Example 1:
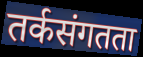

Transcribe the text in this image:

तर्कसंगतता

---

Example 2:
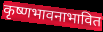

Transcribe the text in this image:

कृष्णभावनाभावित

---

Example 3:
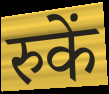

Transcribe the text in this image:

रुकें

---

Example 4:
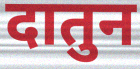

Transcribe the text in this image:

दातुन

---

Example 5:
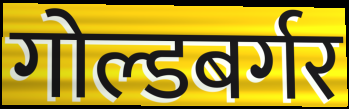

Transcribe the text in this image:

गोल्डबर्गर